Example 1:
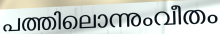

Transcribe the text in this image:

പത്തിലൊന്നുംവീതം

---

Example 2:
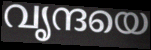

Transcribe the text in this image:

വൃന്ദയെ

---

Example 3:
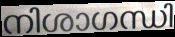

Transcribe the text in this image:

നിശാഗന്ധി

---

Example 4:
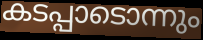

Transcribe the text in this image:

കടപ്പാടൊന്നും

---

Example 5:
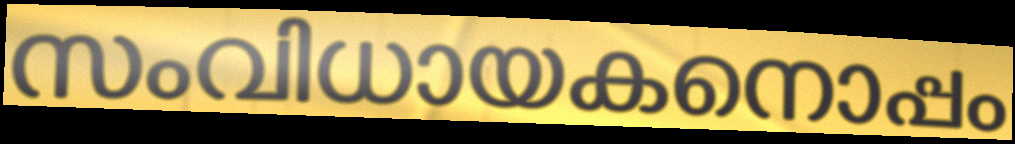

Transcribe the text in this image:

സംവിധായകനൊപ്പം